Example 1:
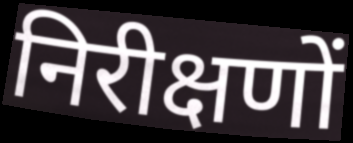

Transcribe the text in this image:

निरीक्षणों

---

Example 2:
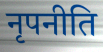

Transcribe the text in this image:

नृपनीति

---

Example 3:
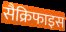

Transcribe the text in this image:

सैक्रिफाइस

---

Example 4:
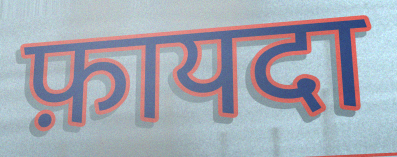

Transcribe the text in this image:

फ़ायदा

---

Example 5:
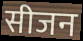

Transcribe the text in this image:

सीजन